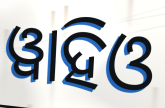
ୱାହିଓ